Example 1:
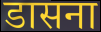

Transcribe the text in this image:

डासना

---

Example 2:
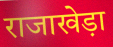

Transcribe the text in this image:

राजाखेड़ा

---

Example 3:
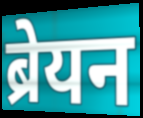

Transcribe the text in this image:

ब्रेयन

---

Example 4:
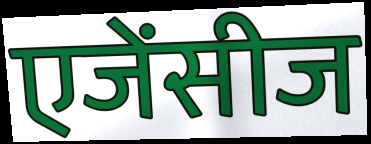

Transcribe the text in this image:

एजेंसीज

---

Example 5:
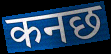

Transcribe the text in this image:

कनछ